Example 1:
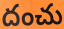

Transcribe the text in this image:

దంచు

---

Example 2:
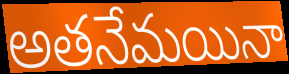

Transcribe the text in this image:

అతనేమయినా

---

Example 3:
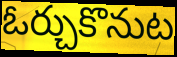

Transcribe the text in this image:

ఓర్చుకొనుట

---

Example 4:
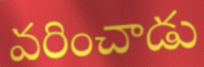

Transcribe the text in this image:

వరించాడు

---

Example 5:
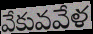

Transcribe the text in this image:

వేకువవేళ